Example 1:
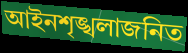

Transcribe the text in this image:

আইনশৃঙ্খলাজনিত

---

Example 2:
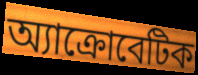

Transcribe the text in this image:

অ্যাক্রোবেটিক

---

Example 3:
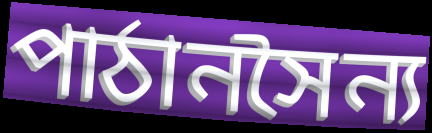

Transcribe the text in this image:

পাঠানসৈন্য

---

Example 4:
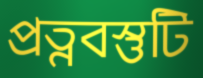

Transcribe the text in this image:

প্রত্নবস্তুটি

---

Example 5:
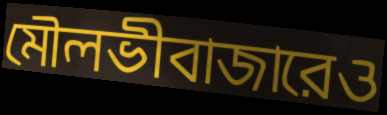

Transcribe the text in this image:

মৌলভীবাজারেও